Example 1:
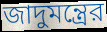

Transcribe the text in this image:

জাদুমন্ত্রের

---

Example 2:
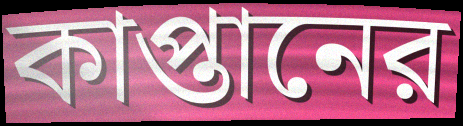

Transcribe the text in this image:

কাপ্তানের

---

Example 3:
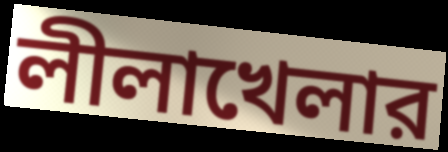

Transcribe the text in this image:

লীলাখেলার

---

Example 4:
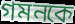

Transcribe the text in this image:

গমনকে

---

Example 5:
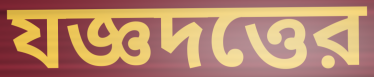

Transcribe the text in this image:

যজ্ঞদত্তের